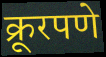
क्रूरपणे